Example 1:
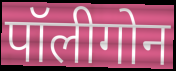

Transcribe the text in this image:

पॉलीगोन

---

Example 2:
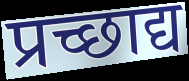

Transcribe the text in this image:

प्रच्छाद्य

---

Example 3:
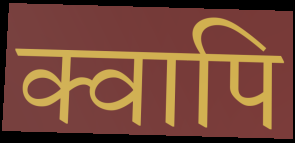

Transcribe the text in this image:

क्वापि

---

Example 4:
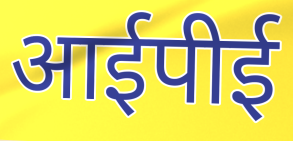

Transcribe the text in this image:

आईपीई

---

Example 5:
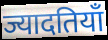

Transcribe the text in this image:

ज्यादतियाँ